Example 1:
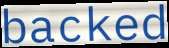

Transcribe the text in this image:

backed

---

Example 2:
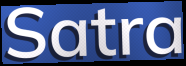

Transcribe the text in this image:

Satra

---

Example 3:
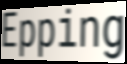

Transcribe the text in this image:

Epping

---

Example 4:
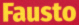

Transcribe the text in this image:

Fausto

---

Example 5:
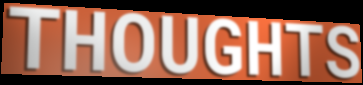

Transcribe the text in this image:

THOUGHTS